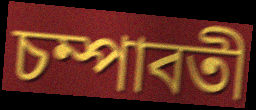
চম্পাবতী